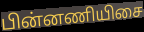
பின்னணியிசை